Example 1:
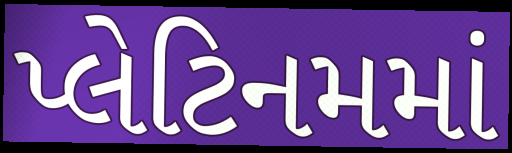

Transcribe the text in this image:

પ્લેટિનમમાં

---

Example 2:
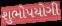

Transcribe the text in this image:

શુભોપયોગી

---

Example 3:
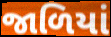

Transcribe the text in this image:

જાળિયાં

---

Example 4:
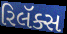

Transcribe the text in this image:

રિલૅક્સ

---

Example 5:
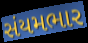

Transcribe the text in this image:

સંયમભાર